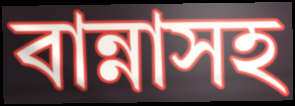
বান্নাসহ